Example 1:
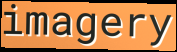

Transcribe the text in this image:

imagery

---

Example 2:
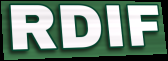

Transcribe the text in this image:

RDIF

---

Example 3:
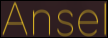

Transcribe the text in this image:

Ansel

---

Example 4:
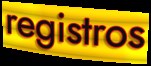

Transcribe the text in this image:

registros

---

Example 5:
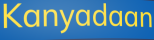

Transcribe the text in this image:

Kanyadaan